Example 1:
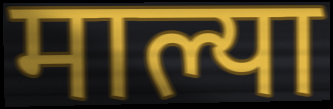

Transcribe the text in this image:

माल्या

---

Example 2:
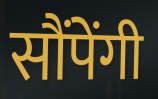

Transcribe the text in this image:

सौंपेंगी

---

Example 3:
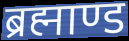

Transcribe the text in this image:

ब्रह्माण्ड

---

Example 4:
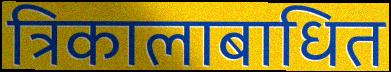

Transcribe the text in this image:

त्रिकालाबाधित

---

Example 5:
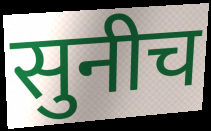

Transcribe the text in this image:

सुनीच